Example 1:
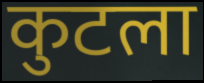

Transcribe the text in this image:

कुटला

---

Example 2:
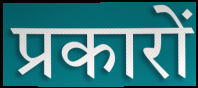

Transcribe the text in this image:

प्रकारों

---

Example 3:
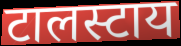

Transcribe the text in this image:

टालस्टाय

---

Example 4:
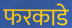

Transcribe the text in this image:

फरकाडे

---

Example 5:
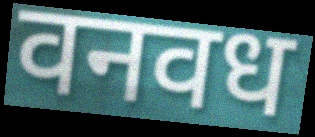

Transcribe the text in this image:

वनवध